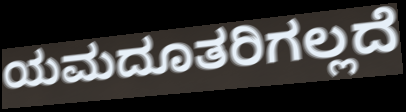
ಯಮದೂತರಿಗಲ್ಲದೆ